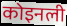
कोइनली